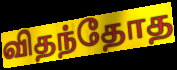
விதந்தோத